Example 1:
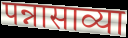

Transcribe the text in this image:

पन्नासाव्या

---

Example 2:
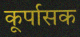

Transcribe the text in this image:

कूर्पासक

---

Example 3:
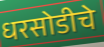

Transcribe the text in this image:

धरसोडीचे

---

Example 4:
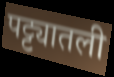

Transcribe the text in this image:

पट्ट्यातली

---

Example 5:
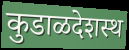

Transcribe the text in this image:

कुडाळदेशस्थ